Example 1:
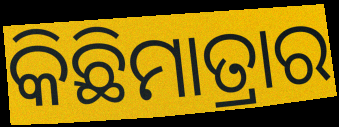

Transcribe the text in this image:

କିଛିମାତ୍ରାର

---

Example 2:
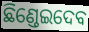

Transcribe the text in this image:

ଛିଣ୍ଡେଇଦେବ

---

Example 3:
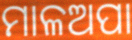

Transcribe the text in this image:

ମାଳଅପା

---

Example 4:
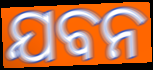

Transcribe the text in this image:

ଯବନ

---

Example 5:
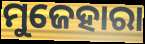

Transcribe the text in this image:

ମୁଜେହାରା